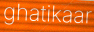
ghatikaar